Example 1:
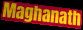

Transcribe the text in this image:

Maghanath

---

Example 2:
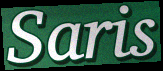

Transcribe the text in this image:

Saris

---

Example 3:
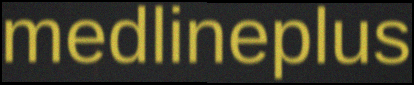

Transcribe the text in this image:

medlineplus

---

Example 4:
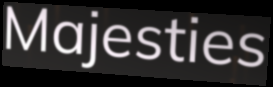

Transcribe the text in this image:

Majesties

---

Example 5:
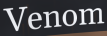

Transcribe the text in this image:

Venom